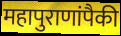
महापुराणांपैकी